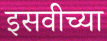
इसवीच्या